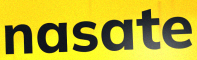
nasate